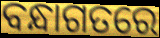
ବନ୍ଧାଗତରେ